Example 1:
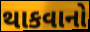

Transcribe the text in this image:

થાકવાનો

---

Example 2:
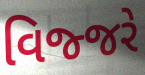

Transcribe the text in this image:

વિજ્જરે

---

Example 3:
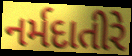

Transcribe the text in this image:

નર્મદાતીરે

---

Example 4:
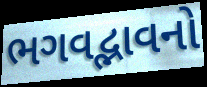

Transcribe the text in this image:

ભગવદ્ભાવનો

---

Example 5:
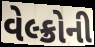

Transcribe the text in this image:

વેલ્ક્રોની